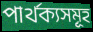
পাৰ্থক্যসমূহ